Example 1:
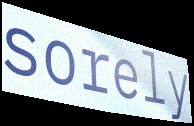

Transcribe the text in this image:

sorely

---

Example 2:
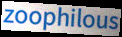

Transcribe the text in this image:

zoophilous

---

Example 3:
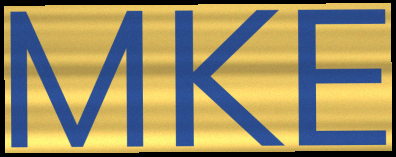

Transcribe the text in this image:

MKE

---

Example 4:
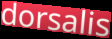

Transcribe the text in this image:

dorsalis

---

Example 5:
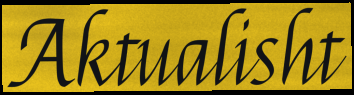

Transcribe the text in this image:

Aktualisht